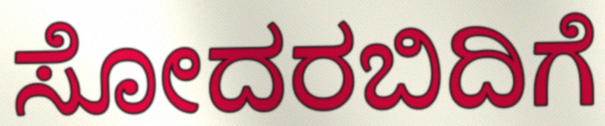
ಸೋದರಬಿದಿಗೆ